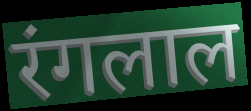
रंगलाल